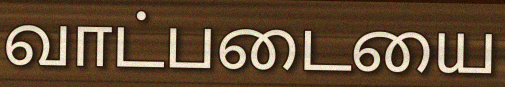
வாட்படையை